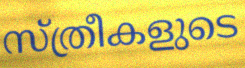
സ്ത്രീകളുടെ